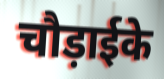
चौड़ाईके